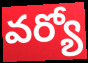
వర్యో